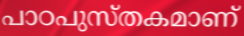
പാഠപുസ്തകമാണ്